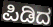
ಪಿಡಿದ